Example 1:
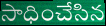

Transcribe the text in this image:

సాధించేసిన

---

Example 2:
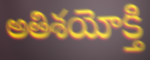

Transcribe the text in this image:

అతిశయోక్తి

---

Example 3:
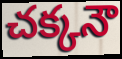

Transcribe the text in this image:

చక్కనౌ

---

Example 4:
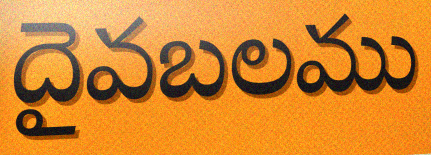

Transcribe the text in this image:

దైవబలము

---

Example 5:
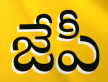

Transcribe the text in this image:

జేపీ